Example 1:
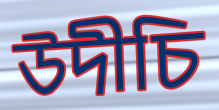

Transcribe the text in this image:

উদীচি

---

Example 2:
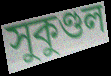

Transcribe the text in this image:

সুকুণ্ডল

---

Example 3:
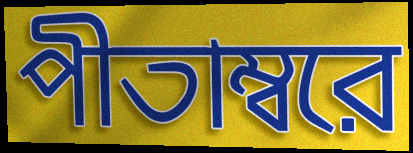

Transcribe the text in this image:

পীতাম্বরে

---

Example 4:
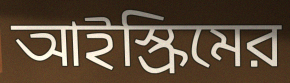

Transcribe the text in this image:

আইস্ক্রিমের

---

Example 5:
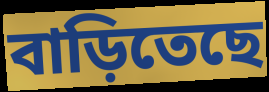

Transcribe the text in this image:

বাড়িতেছে